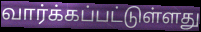
வார்க்கப்பட்டுள்ளது